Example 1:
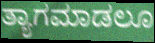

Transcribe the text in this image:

ತ್ಯಾಗಮಾಡಲೂ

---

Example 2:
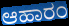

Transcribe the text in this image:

ಆಹಾರಂ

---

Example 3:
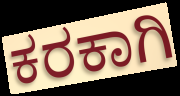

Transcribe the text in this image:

ಕರಕಾಗಿ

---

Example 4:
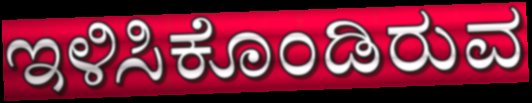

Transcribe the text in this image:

ಇಳಿಸಿಕೊಂಡಿರುವ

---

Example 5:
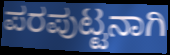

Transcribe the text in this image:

ಪರಪುಟ್ಟನಾಗಿ